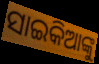
ସାଇକିଆଙ୍କୁ